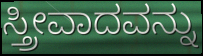
ಸ್ತ್ರೀವಾದವನ್ನು